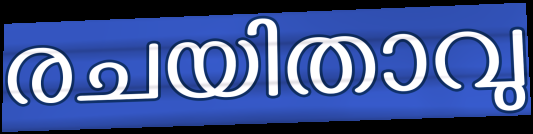
രചയിതാവു